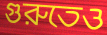
গুরুতেও